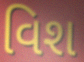
વિશ